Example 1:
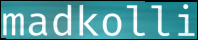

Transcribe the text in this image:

madkolli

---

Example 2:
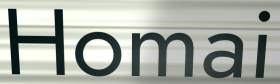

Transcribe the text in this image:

Homai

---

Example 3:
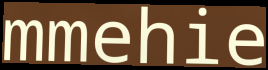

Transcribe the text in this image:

mmehie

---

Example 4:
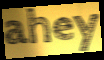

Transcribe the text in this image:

ahey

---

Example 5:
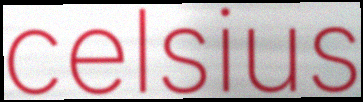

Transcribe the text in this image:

celsius